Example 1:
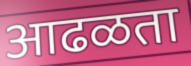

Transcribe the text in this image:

आढळता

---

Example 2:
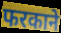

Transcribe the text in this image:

फरकाने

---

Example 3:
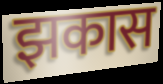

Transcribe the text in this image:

झकास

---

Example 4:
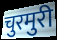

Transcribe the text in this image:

चुरमुरी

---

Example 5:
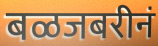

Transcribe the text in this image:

बळजबरीनं